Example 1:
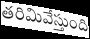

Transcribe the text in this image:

తరిమివేస్తుంది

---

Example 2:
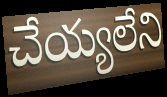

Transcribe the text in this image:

చేయ్యలేని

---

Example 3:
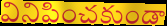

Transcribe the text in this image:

వినిపించకుండా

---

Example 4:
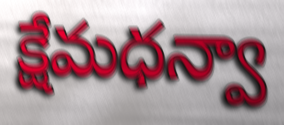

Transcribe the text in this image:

క్షేమధన్వా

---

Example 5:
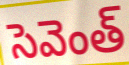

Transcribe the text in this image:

సెవెంత్